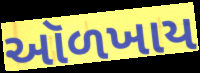
ઑળખાય